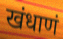
खंधाणं